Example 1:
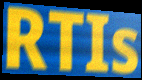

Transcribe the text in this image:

RTIs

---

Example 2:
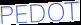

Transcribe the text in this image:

PEDOT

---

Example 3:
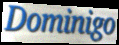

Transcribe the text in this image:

Dominigo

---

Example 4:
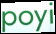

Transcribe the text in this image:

poyi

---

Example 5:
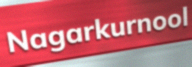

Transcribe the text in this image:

Nagarkurnool